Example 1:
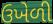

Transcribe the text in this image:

ઉખેળી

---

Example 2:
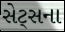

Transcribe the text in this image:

સેટ્સના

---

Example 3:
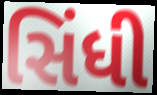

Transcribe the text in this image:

સિંધી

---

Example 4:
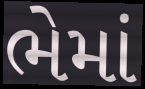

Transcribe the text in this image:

ભેમાં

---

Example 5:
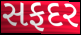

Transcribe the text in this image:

સફદર